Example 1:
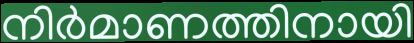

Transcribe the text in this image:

നിർമാണത്തിനായി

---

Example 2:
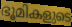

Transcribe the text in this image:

ഭൂമികളുടെ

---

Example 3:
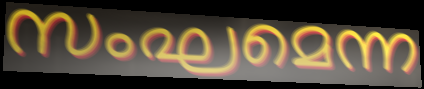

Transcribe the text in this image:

സംഘമെന്ന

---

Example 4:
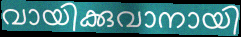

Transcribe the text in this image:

വായിക്കുവാനായി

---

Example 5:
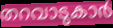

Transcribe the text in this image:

തറവാടുകാർ